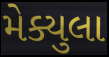
મેક્યુલા